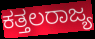
ಕತ್ತಲರಾಜ್ಯ